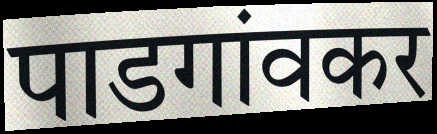
पाडगांवकर